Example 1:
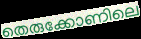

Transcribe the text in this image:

തെരുക്കോണിലെ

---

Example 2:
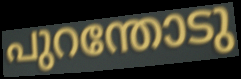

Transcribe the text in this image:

പുറന്തോടു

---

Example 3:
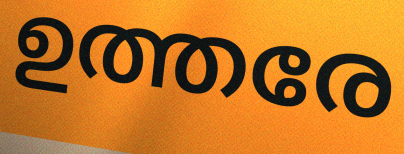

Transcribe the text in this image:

ഉത്തരേ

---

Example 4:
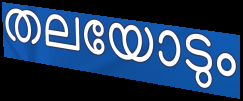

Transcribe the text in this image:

തലയോടും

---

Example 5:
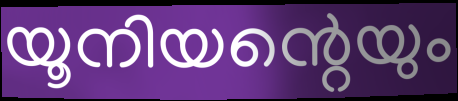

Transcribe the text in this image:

യൂനിയന്റെയും